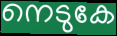
നെടുകേ